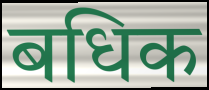
बधिक